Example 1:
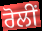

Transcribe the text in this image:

ਰੋਲੀਂ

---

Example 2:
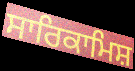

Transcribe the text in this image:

ਸਾਰਿਕਾਮਿਸ਼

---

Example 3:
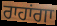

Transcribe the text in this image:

ਰਾਹਾਂਗਾ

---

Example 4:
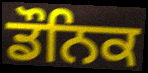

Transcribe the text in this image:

ਡੌਨਿਕ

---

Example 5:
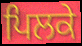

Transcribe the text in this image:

ਪਿਲਕੇ